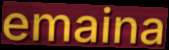
emaina